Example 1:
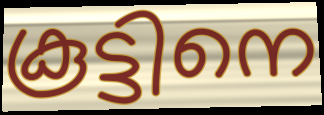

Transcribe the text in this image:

കൂട്ടിനെ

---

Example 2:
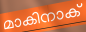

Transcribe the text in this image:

മാകിനാക്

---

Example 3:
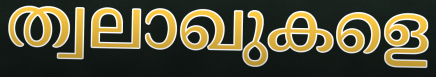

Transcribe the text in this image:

ത്വലാഖുകളെ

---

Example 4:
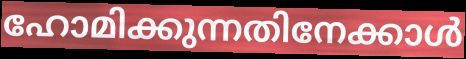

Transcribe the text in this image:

ഹോമിക്കുന്നതിനേക്കാൾ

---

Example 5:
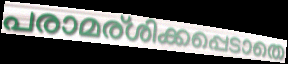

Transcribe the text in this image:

പരാമര്ശിക്കപ്പെടാതെ